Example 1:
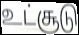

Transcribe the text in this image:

உட்சூடு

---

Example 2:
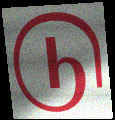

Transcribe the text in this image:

டு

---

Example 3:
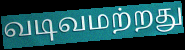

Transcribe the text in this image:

வடிவமற்றது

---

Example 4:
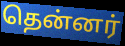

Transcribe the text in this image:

தென்னர்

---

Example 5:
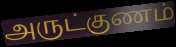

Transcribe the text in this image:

அருட்குணம்